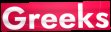
Greeks